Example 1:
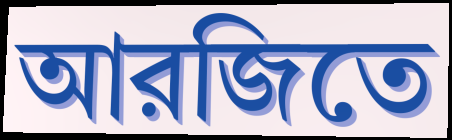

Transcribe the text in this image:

আরজিতে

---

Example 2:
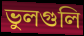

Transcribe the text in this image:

ভুলগুলি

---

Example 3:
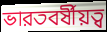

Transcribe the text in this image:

ভারতবর্ষীয়ত্ব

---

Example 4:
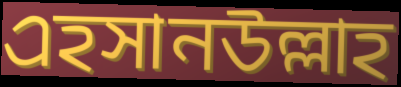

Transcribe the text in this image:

এহসানউল্লাহ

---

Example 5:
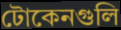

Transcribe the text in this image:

টোকেনগুলি